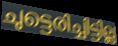
ചുട്ടെരിച്ചിട്ടില്ല